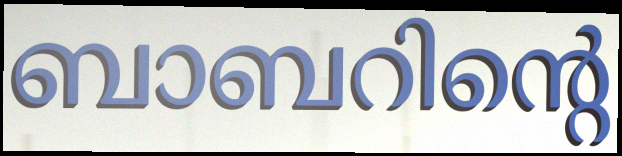
ബാബറിന്റെ